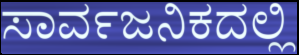
ಸಾರ್ವಜನಿಕದಲ್ಲಿ